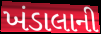
ખંડાલાની